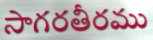
సాగరతీరము